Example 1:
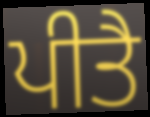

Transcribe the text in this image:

ਪੀਤੈ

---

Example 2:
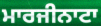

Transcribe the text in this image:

ਮਾਰਜੀਨਾਟਾ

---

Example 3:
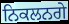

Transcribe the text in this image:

ਨਿਕਲਨਗੇ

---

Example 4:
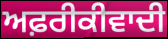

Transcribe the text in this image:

ਅਫ਼ਰੀਕੀਵਾਦੀ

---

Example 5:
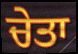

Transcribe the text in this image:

ਚੇਤਾ